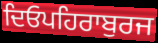
ਦਿਓਪਹਿਰਾਬੁਰਜ